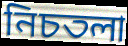
নিচতলা